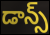
డాన్స్